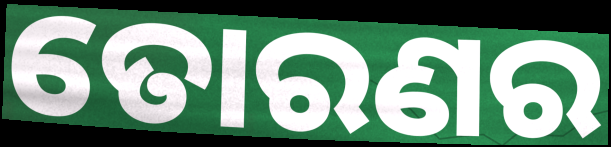
ତୋରଣର